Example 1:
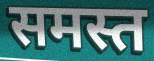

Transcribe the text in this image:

समस्त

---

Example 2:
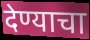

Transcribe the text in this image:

देण्याचा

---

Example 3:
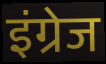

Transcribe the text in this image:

इंग्रेज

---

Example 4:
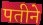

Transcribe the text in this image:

पतीने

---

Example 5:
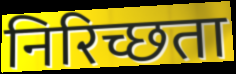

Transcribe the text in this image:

निरिच्छता